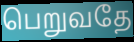
பெறுவதே